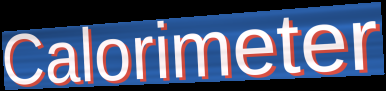
Calorimeter